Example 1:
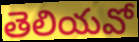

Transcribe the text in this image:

తెలియవో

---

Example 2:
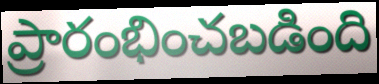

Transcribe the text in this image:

ప్రారంభించబడింది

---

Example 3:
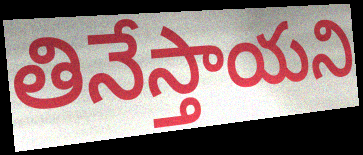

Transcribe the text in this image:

తినేస్తాయని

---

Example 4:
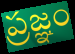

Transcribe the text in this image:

ప్రజ్ఞం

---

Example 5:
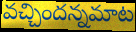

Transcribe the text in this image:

వచ్చిందన్నమాట